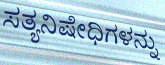
ಸತ್ಯನಿಷೇಧಿಗಳನ್ನು